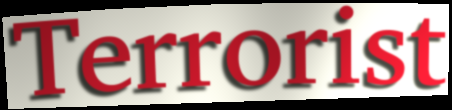
Terrorist